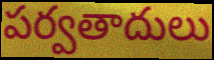
పర్వతాదులు